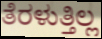
ತೆರಳುತ್ತಿಲ್ಲ